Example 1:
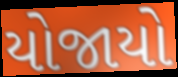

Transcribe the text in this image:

યોજાયો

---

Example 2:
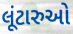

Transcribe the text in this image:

લૂંટારુઓ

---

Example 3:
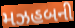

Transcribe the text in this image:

મઝહબની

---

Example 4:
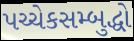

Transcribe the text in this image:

પચ્ચેકસમ્બુદ્ધો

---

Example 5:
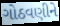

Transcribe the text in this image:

ગોઠવણીને